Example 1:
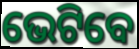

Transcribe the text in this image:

ଭେଟିବେ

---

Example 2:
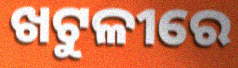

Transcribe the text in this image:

ଖଟୁଳୀରେ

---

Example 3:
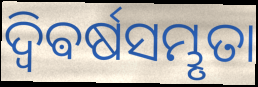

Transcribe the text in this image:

ଦ୍ଵିଵର୍ଷସମ୍ଭୃତା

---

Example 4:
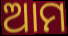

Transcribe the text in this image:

ଆମ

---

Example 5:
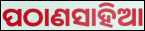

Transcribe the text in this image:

ପଠାଣସାହିଆ